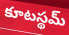
కూటస్థమ్